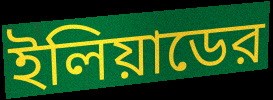
ইলিয়াডের